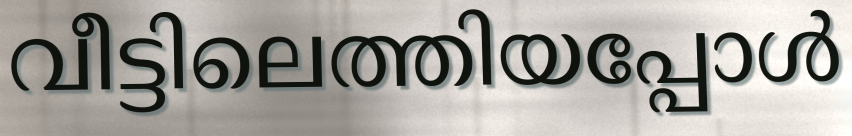
വീട്ടിലെത്തിയപ്പോൾ